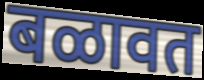
बळावत